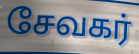
சேவகர்